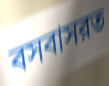
বসবাসরত